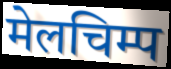
मेलचिम्प